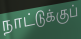
நாட்டுக்குப்